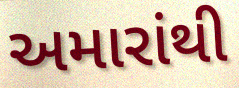
અમારાંથી